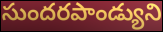
సుందరపాండ్యుని